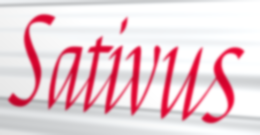
Sativus